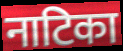
नाटिका